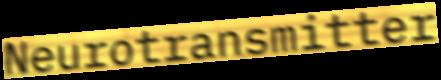
Neurotransmitter